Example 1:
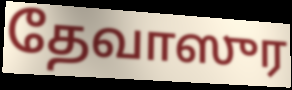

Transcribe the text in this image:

தேவாஸுர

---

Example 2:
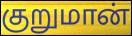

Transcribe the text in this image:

குறுமான்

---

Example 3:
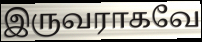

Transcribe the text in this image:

இருவராகவே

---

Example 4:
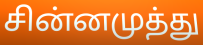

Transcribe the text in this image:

சின்னமுத்து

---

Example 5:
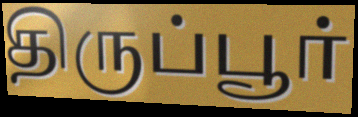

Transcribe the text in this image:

திருப்பூர்